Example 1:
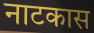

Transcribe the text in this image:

नाटकास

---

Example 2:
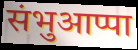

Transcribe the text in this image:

संभुआप्पा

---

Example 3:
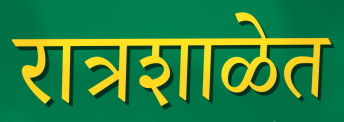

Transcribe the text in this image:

रात्रशाळेत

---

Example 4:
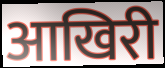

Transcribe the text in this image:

आखिरी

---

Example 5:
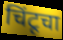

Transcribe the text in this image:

चिंटूचा